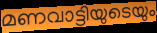
മണവാട്ടിയുടെയും